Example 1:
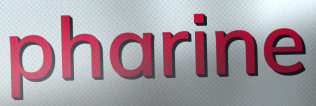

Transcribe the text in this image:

pharine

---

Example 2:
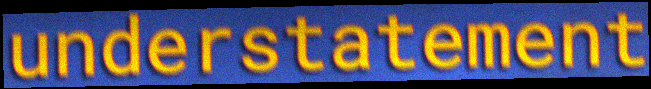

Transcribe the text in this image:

understatement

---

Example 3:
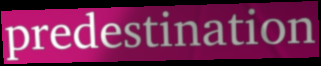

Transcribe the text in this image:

predestination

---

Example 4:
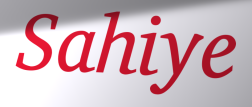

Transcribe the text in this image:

Sahiye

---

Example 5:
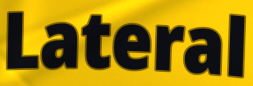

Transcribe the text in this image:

Lateral